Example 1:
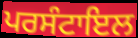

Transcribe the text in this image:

ਪਰਸੰਟਾਇਲ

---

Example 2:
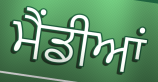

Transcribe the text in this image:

ਮੈਂਡੀਆਂ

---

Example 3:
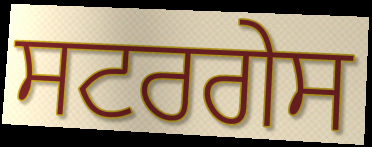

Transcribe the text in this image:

ਸਟਰਗੇਸ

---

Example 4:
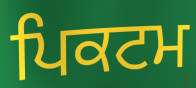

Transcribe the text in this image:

ਪਿਕਟਮ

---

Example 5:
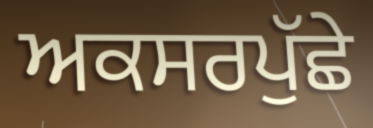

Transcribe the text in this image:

ਅਕਸਰਪੁੱਛੇ